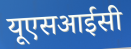
यूएसआईसी